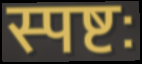
स्पष्टः